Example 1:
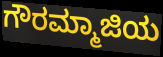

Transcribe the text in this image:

ಗೌರಮ್ಮಾಜಿಯ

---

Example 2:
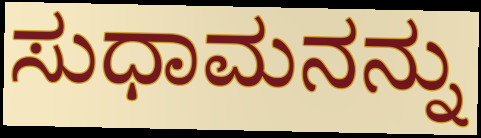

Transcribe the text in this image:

ಸುಧಾಮನನ್ನು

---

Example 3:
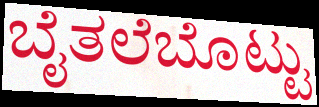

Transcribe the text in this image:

ಬೈತಲೆಬೊಟ್ಟು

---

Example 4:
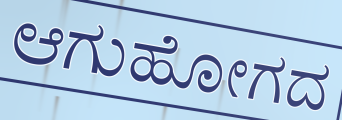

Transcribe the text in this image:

ಆಗುಹೋಗದ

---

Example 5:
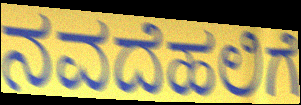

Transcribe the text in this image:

ನವದೆಹಲಿಗೆ